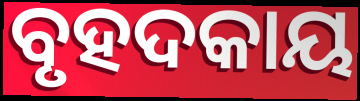
ବୃହଦକାୟ